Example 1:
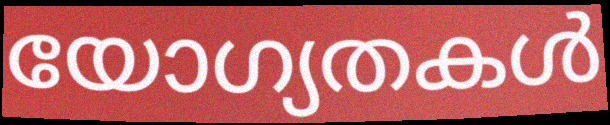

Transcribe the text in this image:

യോഗ്യതകൾ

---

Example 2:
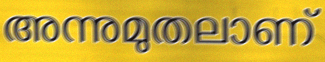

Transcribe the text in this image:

അന്നുമുതലാണ്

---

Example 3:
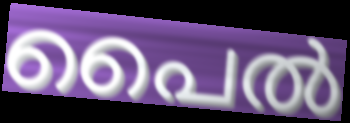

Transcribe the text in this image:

പൈൽ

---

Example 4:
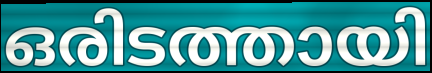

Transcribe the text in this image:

ഒരിടത്തായി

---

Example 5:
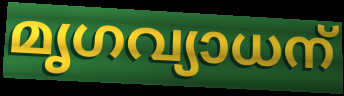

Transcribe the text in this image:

മൃഗവ്യാധന്